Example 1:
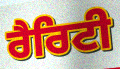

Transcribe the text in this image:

ਰੈਰਿਟੀ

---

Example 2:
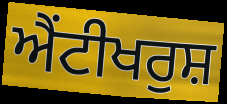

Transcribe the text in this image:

ਐਂਟੀਖਰੁਸ਼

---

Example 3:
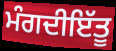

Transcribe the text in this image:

ਮੰਗਦੀਇੱਤੂ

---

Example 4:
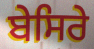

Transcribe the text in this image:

ਬੇਸਿਰੇ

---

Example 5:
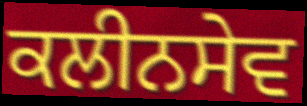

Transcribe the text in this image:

ਕਲੀਨਸੇਵ